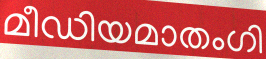
മീഡിയമാതംഗി